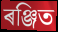
ৰঞ্জিত